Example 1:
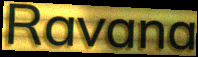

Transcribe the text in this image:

Ravana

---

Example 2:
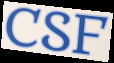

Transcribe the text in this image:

CSF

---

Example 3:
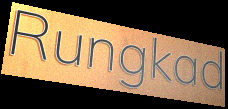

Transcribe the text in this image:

Rungkad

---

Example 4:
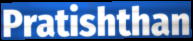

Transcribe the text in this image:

Pratishthan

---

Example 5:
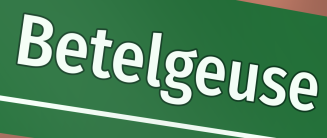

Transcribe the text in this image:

Betelgeuse